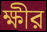
ক্ষীর